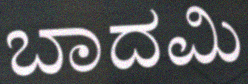
ಬಾದಮಿ